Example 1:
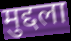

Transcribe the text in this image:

मुद्दला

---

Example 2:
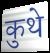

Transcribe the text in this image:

कुथे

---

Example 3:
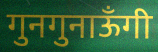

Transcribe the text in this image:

गुनगुनाऊँगी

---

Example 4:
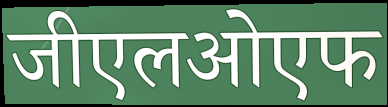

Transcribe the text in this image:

जीएलओएफ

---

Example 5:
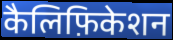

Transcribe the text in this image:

कैलिफ़िकेशन